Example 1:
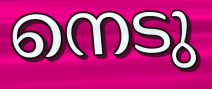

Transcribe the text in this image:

നെടു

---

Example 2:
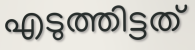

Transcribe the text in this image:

എടുത്തിട്ടത്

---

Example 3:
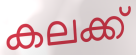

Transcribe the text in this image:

കലക്ക്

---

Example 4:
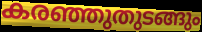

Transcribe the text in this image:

കരഞ്ഞുതുടങ്ങും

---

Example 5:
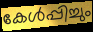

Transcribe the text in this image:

കേൾപ്പിച്ചും